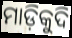
ମାଡ଼ିକୁଦି